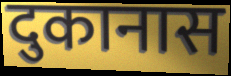
दुकानास